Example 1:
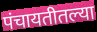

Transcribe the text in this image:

पंचायतीतल्या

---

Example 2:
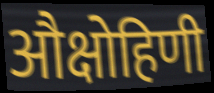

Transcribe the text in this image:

औक्षोहिणी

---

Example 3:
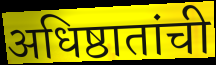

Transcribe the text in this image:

अधिष्ठातांची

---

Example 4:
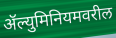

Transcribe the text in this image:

ॲल्युमिनियमवरील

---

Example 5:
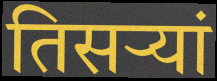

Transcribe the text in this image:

तिसऱ्यां